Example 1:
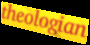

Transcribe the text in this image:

theologian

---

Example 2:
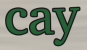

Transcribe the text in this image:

cay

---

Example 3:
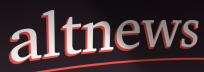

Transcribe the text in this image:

altnews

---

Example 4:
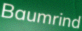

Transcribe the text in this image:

Baumrind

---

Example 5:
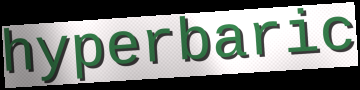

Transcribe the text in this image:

hyperbaric